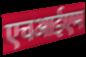
एचआईएम